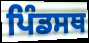
ਪਿੰਡਸਥ